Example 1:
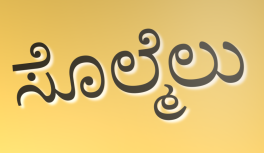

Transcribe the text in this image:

ಸೊಲ್ಮೆಲು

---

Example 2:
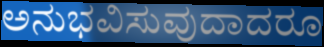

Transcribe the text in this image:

ಅನುಭವಿಸುವುದಾದರೂ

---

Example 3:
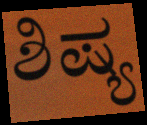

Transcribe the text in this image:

ಶಿಷ್ಯ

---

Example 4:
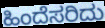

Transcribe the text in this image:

ಹಿಂದೆಸರಿದು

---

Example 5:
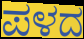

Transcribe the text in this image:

ಪಳದ